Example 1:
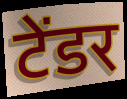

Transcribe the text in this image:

टेंडर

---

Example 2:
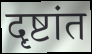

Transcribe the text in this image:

दृष्टांत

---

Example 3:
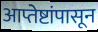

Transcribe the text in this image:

आप्तेष्टांपासून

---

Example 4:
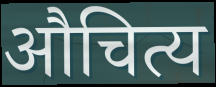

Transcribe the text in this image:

औचित्य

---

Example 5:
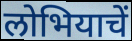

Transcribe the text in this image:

लोभियाचें